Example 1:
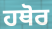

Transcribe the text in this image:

ਹਥੋਰ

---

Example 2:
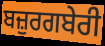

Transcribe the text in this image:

ਬਜ਼ੁਰਗਬੇਰੀ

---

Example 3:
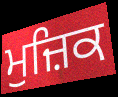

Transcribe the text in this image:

ਮੁਜ਼ਿਕ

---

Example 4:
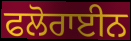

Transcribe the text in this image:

ਫਲੋਰਾਈਨ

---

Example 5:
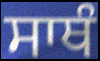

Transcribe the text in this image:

ਸਾਥੰ